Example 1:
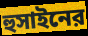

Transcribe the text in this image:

হুসাইনের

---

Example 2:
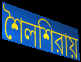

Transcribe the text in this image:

শৈলশিরায়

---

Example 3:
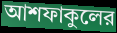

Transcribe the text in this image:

আশফাকুলের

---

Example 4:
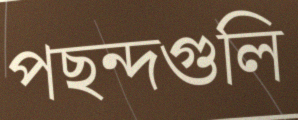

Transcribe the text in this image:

পছন্দগুলি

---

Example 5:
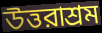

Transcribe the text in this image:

উত্তরাশ্রম